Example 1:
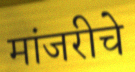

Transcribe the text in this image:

मांजरीचे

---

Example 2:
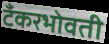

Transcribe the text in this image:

टँकरभोवती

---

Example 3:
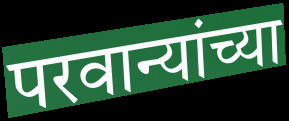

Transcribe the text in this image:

परवान्यांच्या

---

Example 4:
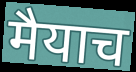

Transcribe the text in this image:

मैयाच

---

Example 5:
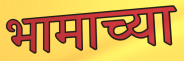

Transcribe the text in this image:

भामाच्या